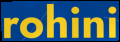
rohini